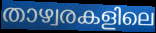
താഴ്വരകളിലെ